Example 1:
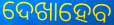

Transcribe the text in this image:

ଦେଖାହେବ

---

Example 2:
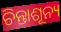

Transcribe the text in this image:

ଚିନ୍ତାଶୂନ୍ୟ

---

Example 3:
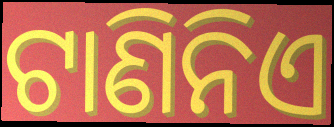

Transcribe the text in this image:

ଟାଣିନିଏ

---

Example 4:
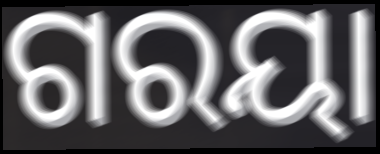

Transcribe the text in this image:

ଗରୟା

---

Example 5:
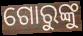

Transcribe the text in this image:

ଗୋରୁଙ୍କୁ